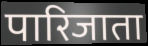
पारिजाता